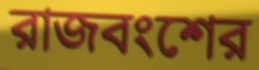
রাজবংশের